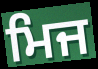
ਮਿਜ